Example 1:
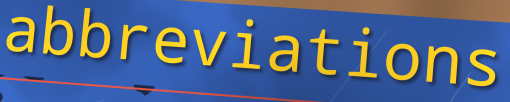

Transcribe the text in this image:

abbreviations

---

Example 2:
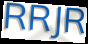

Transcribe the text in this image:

RRJR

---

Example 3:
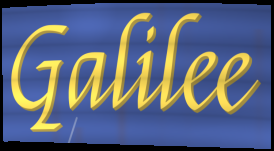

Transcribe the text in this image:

Galilee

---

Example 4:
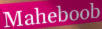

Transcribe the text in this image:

Maheboob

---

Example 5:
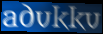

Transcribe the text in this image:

adukku